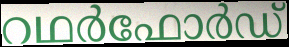
റഥർഫോർഡ്